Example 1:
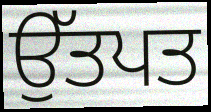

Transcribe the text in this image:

ਉੱਤਪਤ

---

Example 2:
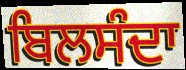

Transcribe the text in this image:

ਬਿਲਸੰਦਾ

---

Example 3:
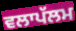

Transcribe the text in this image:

ਵਲਾਪੱਲਮ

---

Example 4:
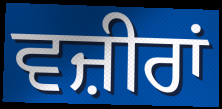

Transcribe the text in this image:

ਵਜ਼ੀਰਾਂ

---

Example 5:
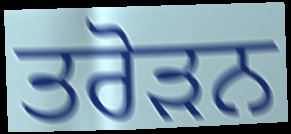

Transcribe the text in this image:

ਤਰੋੜਨ